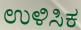
ಉಳಿಸಿಕ